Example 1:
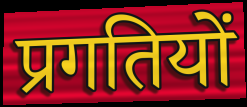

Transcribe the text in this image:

प्रगतियों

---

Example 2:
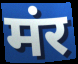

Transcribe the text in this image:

मंर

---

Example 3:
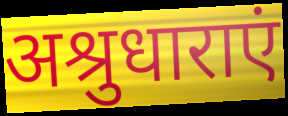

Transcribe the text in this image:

अश्रुधाराएं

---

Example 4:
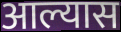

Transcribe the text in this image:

आल्यास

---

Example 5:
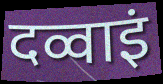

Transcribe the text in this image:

दव्वाइं